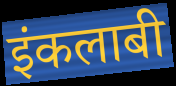
इंकलाबी